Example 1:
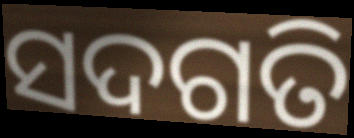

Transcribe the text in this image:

ସଦଗତି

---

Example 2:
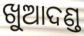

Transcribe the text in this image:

ଖୁଆଦଣ୍ଡ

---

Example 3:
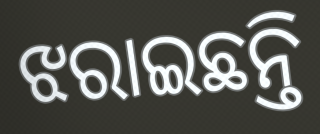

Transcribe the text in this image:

ଝରାଇଛନ୍ତି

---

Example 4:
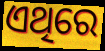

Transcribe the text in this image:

ଏଥିରେ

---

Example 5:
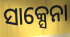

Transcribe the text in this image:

ସାକ୍ସେନା